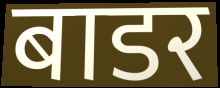
बाडर